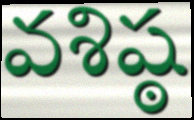
వశిష్ఠ